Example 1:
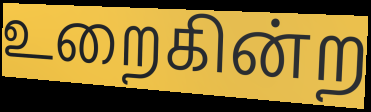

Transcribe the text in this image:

உறைகின்ற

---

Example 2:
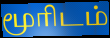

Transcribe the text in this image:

மூரிடம்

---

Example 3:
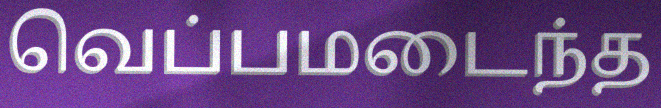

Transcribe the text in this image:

வெப்பமடைந்த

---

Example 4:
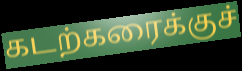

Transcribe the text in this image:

கடற்கரைக்குச்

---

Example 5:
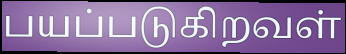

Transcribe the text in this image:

பயப்படுகிறவள்